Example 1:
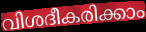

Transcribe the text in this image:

വിശദീകരിക്കാം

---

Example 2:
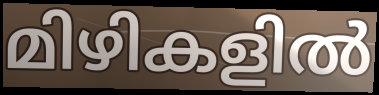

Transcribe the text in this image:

മിഴികളിൽ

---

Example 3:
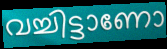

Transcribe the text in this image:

വച്ചിട്ടാണോ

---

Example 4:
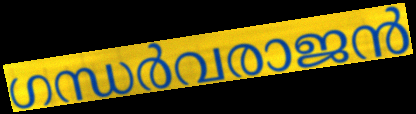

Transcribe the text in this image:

ഗന്ധർവരാജൻ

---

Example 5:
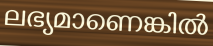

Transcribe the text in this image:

ലഭ്യമാണെങ്കിൽ